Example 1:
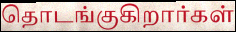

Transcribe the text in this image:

தொடங்குகிறார்கள்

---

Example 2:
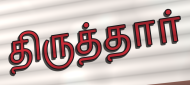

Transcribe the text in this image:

திருத்தார்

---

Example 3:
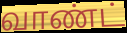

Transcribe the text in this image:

வாண்ட்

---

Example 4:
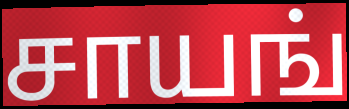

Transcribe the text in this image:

சாயங்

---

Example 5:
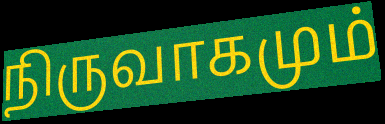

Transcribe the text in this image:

நிருவாகமும்